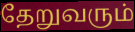
தேறுவரும்